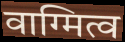
वाग्मित्व